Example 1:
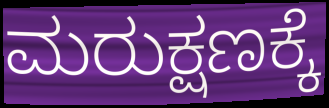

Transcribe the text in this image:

ಮರುಕ್ಷಣಕ್ಕೆ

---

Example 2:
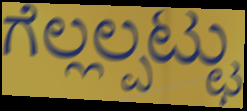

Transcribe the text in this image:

ಗೆಲ್ಲಲ್ಪಟ್ಟು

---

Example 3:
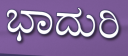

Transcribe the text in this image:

ಭಾದುರಿ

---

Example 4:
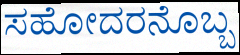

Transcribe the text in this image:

ಸಹೋದರನೊಬ್ಬ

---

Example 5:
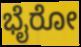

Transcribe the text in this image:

ಭೈರೋ